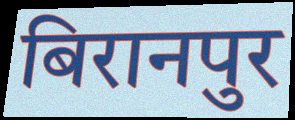
बिरानपुर